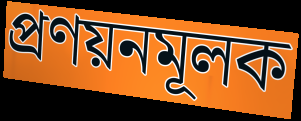
প্রণয়নমূলক